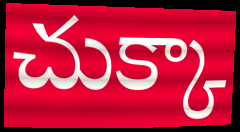
చుక్కా